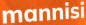
mannisi